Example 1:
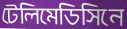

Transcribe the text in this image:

টেলিমেডিসিনে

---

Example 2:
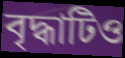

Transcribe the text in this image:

বৃদ্ধাটিও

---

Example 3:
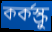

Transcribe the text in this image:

কর্কস্ক্রু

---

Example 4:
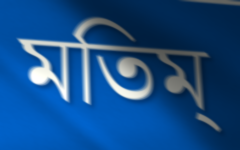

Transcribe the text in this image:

মতিম্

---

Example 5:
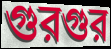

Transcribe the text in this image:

গুরগুর